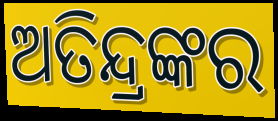
ଅତିନ୍ଦ୍ରଙ୍କର